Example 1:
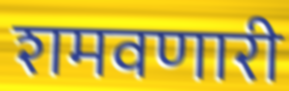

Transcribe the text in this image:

शमवणारी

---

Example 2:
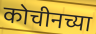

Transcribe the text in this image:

कोचीनच्या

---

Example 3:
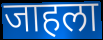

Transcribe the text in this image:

जाहला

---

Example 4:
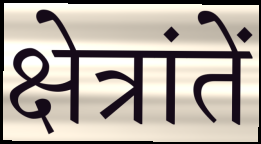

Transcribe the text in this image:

क्षेत्रांतें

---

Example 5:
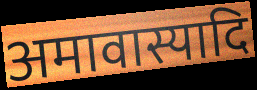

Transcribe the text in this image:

अमावास्यादि